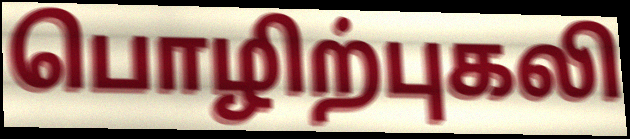
பொழிற்புகலி